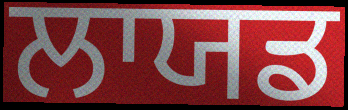
ਲਾਯਡ